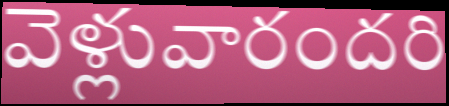
వెళ్లువారందరి